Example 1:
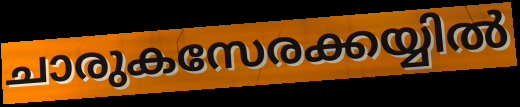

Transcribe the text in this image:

ചാരുകസേരക്കയ്യിൽ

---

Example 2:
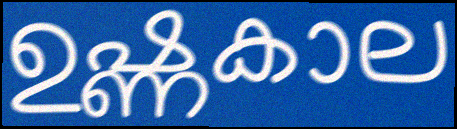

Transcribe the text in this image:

ഉഷ്ണകാല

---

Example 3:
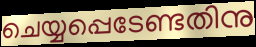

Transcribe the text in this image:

ചെയ്യപ്പെടേണ്ടതിനു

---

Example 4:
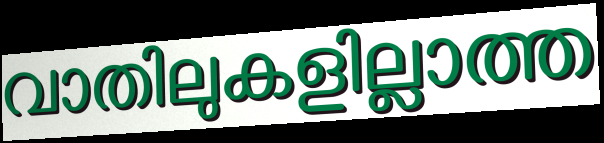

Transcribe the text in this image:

വാതിലുകളില്ലാത്ത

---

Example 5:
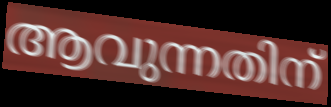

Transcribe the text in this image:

ആവുന്നതിന്